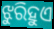
ଝୁରିହୁଏ